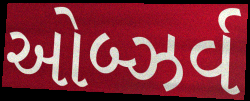
ઓબ્ઝર્વ